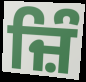
ਜ਼ਿੰ